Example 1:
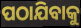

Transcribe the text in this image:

ପଠାଯିବାକୁ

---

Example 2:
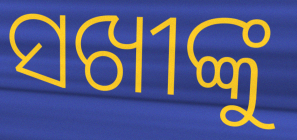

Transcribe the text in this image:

ସଖୀଙ୍କୁ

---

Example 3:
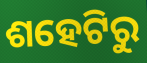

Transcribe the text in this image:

ଶହେଟିରୁ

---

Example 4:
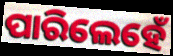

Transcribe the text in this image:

ପାରିଲେହେଁ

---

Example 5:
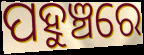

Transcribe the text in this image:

ପହୁଞ୍ଚରେ